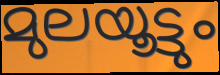
മുലയൂട്ടും